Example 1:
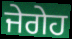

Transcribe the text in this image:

ਜੇਗੇਹ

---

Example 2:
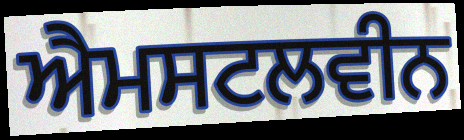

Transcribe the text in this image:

ਐਮਸਟਲਵੀਨ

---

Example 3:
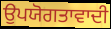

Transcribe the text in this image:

ਉਪਯੋਗਤਾਵਾਦੀ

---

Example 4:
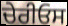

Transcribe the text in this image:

ਚੇਰੀਓਸ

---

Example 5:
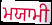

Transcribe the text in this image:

ਮਯਾਮੀ